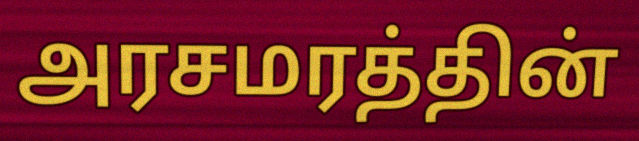
அரசமரத்தின்